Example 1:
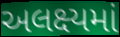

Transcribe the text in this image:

અલક્ષ્યમાં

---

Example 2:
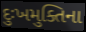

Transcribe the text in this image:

દુઃખમુક્તિના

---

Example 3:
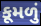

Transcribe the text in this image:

કૂમળું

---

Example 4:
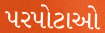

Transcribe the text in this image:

પરપોટાઓ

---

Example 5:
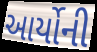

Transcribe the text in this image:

આર્યોની